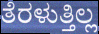
ತೆರಳುತ್ತಿಲ್ಲ